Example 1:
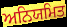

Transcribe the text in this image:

ਅਨਿਯਮਿਤ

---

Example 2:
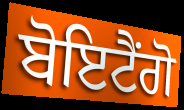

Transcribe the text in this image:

ਬੋਇਟੈਂਗੋ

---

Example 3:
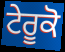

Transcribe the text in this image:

ਟੇਰੂਕੋ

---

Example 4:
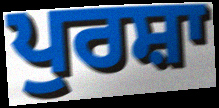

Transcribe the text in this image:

ਪੁਰਸ਼ਾ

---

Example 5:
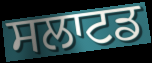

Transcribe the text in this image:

ਸਲਾਟਡ